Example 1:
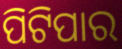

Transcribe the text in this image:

ପିଟିପାର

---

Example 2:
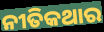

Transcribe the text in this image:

ନୀତିକଥାର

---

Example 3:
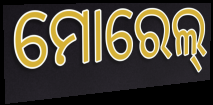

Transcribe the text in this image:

ମୋରେଲ୍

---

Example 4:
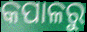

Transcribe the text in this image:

କପାଳରୁ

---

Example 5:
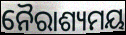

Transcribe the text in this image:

ନୈରାଶ୍ୟମୟ